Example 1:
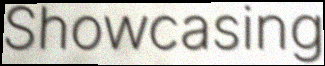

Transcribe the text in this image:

Showcasing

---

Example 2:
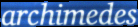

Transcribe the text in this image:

archimedes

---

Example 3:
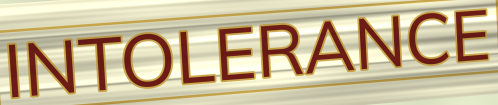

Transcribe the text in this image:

INTOLERANCE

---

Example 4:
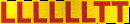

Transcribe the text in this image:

LLLLLLTT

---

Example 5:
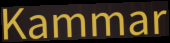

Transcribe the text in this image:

Kammar